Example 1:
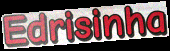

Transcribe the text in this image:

Edrisinha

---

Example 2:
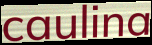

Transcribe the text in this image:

caulina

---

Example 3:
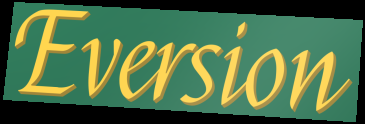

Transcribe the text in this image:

Eversion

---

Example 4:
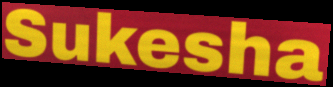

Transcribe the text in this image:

Sukesha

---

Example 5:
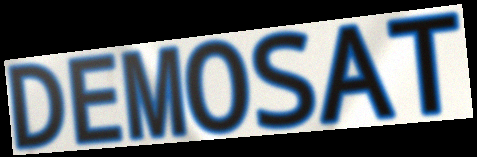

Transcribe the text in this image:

DEMOSAT